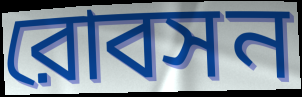
রোবসন